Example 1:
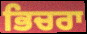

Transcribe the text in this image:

ਭਿਚਰਾ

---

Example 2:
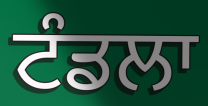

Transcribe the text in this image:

ਟੰਡਲਾ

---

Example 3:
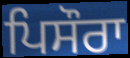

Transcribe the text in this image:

ਪਿਸੌਰਾ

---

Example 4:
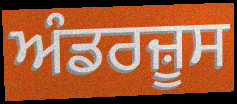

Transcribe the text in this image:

ਅੰਡਰਜ਼ੂਸ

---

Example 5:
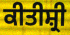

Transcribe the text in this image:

ਕੀਤੀਸ਼੍ਰੀ